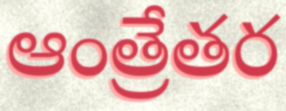
ఆంత్రేతర